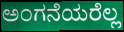
ಅಂಗನೆಯರೆಲ್ಲ